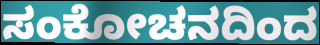
ಸಂಕೋಚನದಿಂದ